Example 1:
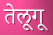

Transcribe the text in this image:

तेलूगू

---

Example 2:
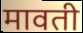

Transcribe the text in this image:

मावती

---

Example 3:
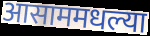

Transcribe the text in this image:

आसाममधल्या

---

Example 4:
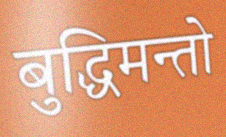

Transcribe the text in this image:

बुद्धिमन्तो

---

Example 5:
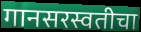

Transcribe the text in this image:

गानसरस्वतीचा